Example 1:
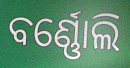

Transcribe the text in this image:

ବର୍ଣ୍ଣୋଲି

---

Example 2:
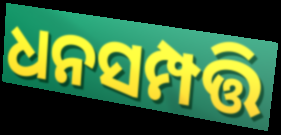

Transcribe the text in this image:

ଧନସମ୍ପତ୍ତି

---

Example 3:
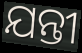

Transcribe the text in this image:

ଯନ୍ତୀ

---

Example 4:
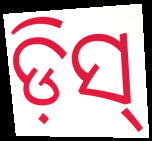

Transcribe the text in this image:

ଡ଼ିସ୍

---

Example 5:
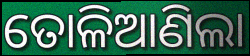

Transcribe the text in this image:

ତୋଳିଆଣିଲା